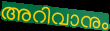
അറിവാനും